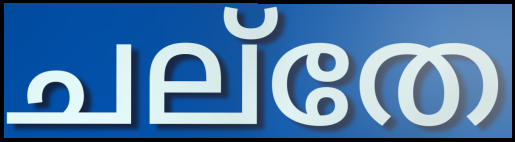
ചല്തേ